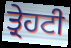
ਤ੍ਰੇਹਟੀ